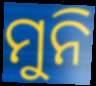
ମୁନି